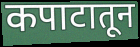
कपाटातून